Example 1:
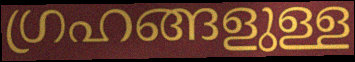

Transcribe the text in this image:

ഗ്രഹങ്ങളുള്ള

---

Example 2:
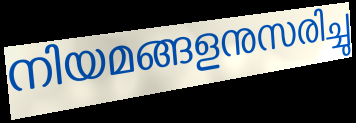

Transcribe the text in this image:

നിയമങ്ങളനുസരിച്ചു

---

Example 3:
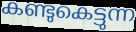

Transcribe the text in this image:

കണ്ടുകെട്ടുന്ന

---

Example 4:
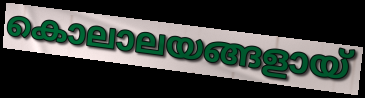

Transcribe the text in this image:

കൊലാലയങ്ങളായ്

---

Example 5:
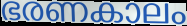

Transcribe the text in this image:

ഭരണകാലം